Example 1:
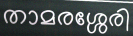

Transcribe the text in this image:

താമരശ്ശേരി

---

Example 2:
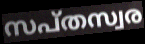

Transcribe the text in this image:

സപ്തസ്വര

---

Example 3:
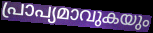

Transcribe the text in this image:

പ്രാപ്യമാവുകയും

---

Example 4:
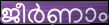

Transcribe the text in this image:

ജീർണാം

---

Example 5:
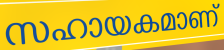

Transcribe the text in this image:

സഹായകമാണ്